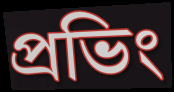
প্রভিং